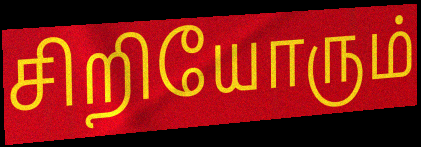
சிறியோரும்